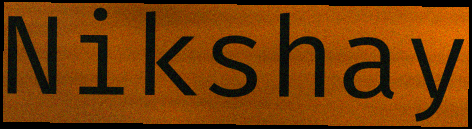
Nikshay